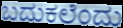
ಬದುಕಲೆಂದು